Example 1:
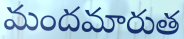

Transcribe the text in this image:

మందమారుత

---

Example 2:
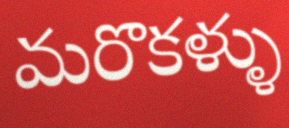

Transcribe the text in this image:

మరొకళ్ళు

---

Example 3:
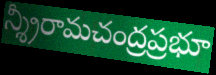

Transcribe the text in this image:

న్శ్రీరామచంద్రప్రభూ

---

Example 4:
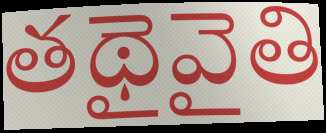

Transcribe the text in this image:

తథైవైతి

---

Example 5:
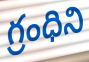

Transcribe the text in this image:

గ్రంధిని